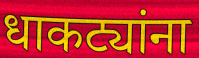
धाकट्यांना